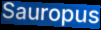
Sauropus